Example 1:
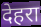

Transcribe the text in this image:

देहरा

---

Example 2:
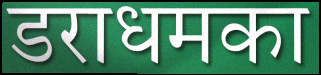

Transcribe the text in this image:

डराधमका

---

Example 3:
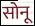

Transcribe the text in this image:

सोनू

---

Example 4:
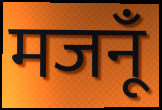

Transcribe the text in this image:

मजनूँ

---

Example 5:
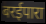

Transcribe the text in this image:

बरईपारा